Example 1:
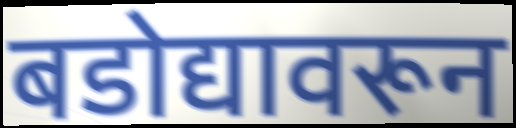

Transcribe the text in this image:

बडोद्यावरून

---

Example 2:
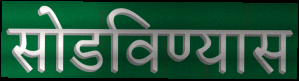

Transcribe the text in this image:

सोडविण्यास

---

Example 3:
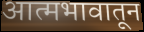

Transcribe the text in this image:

आत्मभावातून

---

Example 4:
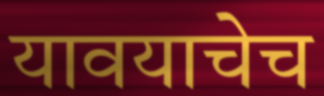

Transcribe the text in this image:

यावयाचेच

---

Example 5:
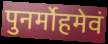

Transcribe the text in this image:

पुनर्मोहमेवं